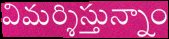
విమర్శిస్తున్నాం